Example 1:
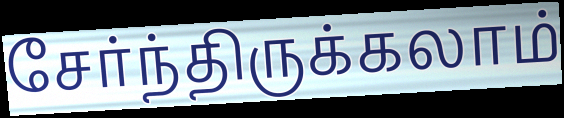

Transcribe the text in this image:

சேர்ந்திருக்கலாம்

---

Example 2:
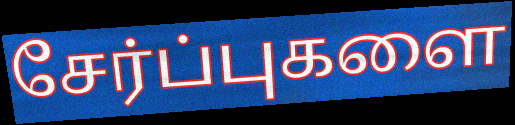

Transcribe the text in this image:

சேர்ப்புகளை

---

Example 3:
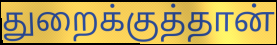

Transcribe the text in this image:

துறைக்குத்தான்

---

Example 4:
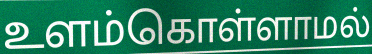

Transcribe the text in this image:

உளம்கொள்ளாமல்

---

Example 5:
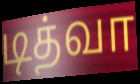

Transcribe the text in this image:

டித்வா